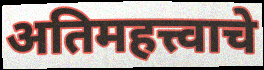
अतिमहत्त्वाचे